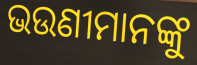
ଭଉଣୀମାନଙ୍କୁ